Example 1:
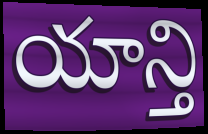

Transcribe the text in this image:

యాన్తి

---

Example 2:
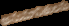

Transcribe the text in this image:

అనుమానితులను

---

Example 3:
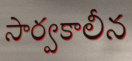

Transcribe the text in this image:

సార్వకాలీన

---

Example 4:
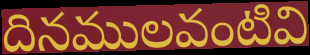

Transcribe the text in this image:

దినములవంటివి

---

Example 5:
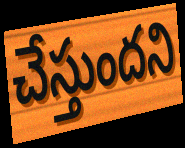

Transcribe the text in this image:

చేస్తుందని